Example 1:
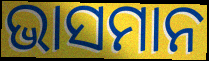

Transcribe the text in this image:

ଭାସମାନ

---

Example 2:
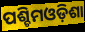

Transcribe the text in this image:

ପଶ୍ଚିମଓଡ଼ିଶା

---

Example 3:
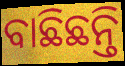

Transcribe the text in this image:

ବାଛିଛନ୍ତି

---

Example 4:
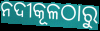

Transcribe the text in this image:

ନଦୀକୂଳଠାରୁ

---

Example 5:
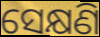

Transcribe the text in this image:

ସେକ୍ଷଣି